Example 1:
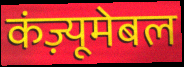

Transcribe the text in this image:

कंज़्यूमेबल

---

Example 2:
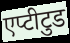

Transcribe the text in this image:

एप्टीटुड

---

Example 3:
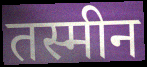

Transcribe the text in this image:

तस्मीन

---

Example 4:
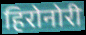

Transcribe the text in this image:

हिरोनोरी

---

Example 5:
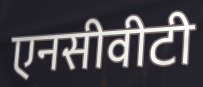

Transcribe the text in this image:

एनसीवीटी